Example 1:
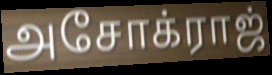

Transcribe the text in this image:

அசோக்ராஜ்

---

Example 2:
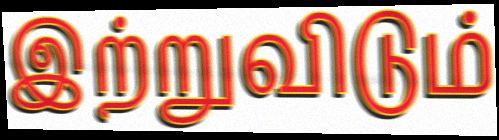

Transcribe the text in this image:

இற்றுவிடும்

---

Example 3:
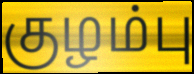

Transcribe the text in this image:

குழம்பு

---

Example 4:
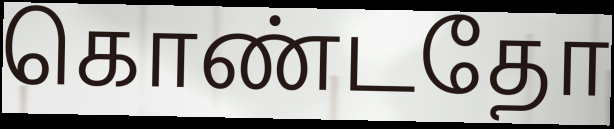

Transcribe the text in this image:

கொண்டதோ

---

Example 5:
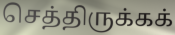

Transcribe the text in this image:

செத்திருக்கக்